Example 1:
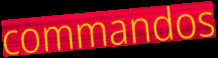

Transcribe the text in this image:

commandos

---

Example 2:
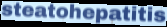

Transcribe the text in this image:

steatohepatitis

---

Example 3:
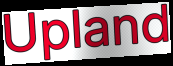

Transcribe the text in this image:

Upland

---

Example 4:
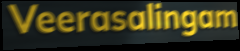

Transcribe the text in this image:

Veerasalingam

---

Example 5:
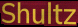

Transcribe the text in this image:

Shultz